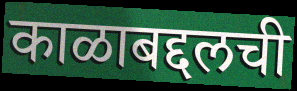
काळाबद्दलची